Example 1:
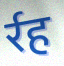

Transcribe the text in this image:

र्रह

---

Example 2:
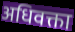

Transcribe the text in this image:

अधिवक्ता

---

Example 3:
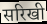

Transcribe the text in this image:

सरिखी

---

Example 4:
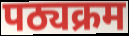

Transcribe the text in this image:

पठ्यक्रम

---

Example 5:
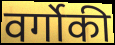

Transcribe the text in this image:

वर्गोकी